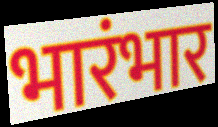
भारंभार